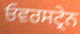
ਓਵਰਸਟ੍ਰੇਨ